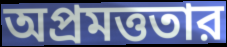
অপ্রমত্ততার